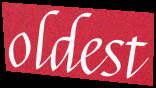
oldest